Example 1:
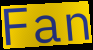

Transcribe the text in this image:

Fan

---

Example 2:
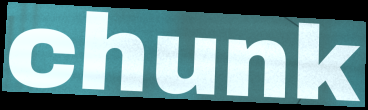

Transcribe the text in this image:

chunk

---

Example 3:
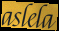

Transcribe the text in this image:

aslela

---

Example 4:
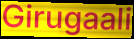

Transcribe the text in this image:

Girugaali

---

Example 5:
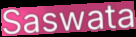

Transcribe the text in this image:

Saswata